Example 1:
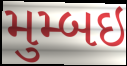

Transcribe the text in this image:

મુમ્બઇ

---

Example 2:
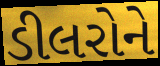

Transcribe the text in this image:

ડીલરોને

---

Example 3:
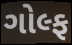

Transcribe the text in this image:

ગોલ્ફ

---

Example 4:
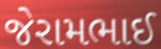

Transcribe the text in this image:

જેરામભાઈ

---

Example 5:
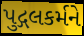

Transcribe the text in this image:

પુદ્ગલકર્મને